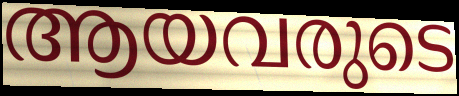
ആയവരുടെ